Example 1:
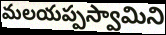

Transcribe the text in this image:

మలయప్పస్వామిని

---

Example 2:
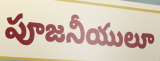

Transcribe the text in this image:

పూజనీయులూ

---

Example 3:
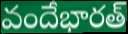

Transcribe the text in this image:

వందేభారత్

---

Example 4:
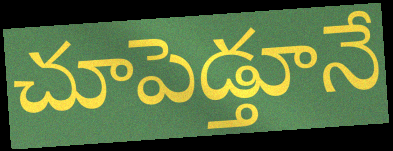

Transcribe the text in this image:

చూపెడ్తూనే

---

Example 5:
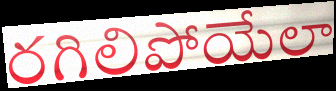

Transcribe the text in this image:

రగిలిపోయేలా